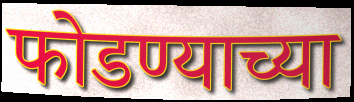
फोडण्याच्या